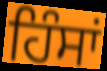
ਹਿੰਸਾਂ